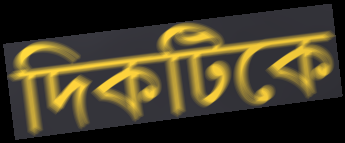
দিকটিকে